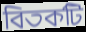
বিতর্কটি